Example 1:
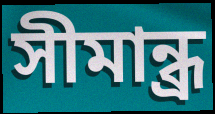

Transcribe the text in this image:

সীমান্ধ্র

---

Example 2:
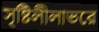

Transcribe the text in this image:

সৃষ্টিলীলাভরে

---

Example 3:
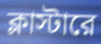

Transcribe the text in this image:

ক্লাস্টারে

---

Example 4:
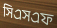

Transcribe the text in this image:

সিএসএফ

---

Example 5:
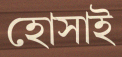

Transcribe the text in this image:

হোসাই